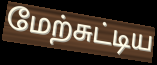
மேற்சுட்டிய